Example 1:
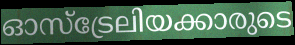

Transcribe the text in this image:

ഓസ്ട്രേലിയക്കാരുടെ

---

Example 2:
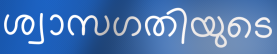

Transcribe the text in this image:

ശ്വാസഗതിയുടെ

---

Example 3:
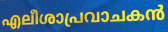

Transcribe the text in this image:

എലീശാപ്രവാചകൻ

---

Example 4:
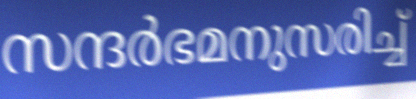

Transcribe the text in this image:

സന്ദർഭമനുസരിച്ച്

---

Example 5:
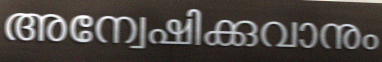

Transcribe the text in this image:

അന്വേഷിക്കുവാനും